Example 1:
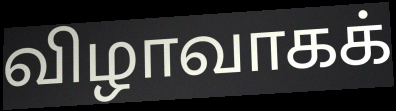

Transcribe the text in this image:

விழாவாகக்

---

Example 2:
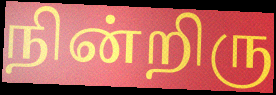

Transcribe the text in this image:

நின்றிரு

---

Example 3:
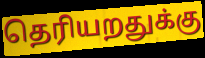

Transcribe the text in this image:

தெரியறதுக்கு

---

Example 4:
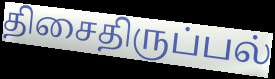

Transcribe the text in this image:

திசைதிருப்பல்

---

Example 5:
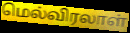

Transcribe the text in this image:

மெல்விரலாள்